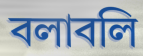
বলাবলি